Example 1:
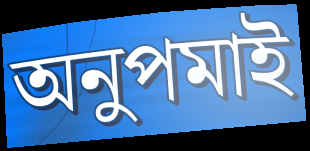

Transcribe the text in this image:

অনুপমাই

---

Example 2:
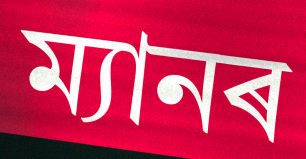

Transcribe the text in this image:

ম্যানৰ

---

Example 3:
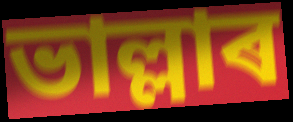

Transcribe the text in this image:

ভাল্লাৰ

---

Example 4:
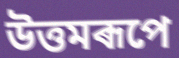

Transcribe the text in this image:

উত্তমৰূপে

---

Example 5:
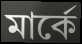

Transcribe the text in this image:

মাৰ্কে